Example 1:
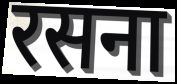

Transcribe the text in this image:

रसना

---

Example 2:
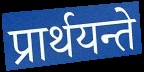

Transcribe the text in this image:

प्रार्थयन्ते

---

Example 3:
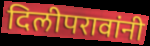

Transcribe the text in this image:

दिलीपरावांनी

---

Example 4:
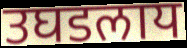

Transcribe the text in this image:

उघडलाय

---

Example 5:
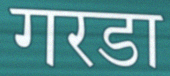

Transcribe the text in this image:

गरडा